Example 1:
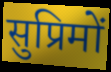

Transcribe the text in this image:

सुप्रिमों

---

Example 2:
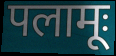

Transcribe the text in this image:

पलामूः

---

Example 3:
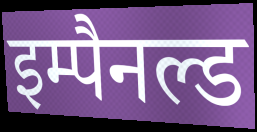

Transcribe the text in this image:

इम्पैनल्ड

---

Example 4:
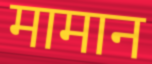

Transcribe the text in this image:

मामान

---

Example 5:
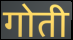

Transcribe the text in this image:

गोती